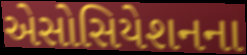
એસોસિયેશનના